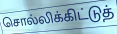
சொல்லிக்கிட்டுத்